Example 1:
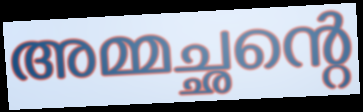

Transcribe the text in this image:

അമ്മച്ഛന്റെ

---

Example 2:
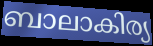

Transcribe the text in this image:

ബാലാകിര്യ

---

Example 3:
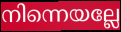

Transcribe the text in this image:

നിന്നെയല്ലേ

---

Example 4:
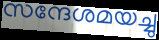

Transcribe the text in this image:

സന്ദേശമയച്ചു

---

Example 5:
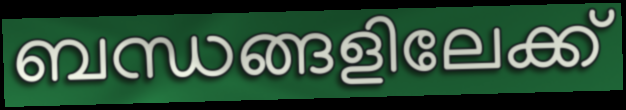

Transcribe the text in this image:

ബന്ധങ്ങളിലേക്ക്